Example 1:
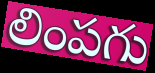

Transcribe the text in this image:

లింపగు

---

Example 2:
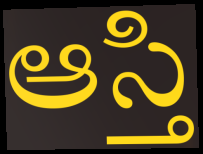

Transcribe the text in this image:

ఆస్తి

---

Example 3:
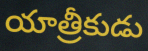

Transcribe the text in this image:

యాత్రీకుడు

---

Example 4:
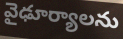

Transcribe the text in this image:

వైఢూర్యాలను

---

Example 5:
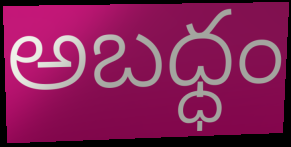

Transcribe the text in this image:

అబధ్ధం